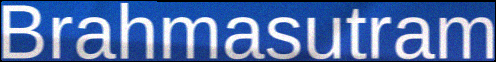
Brahmasutram